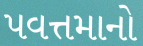
પવત્તમાનો